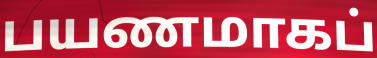
பயணமாகப்